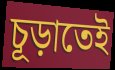
চূড়াতেই